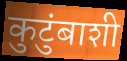
कुटुंबाशी